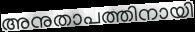
അനുതാപത്തിനായി